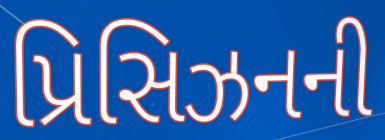
પ્રિસિઝનની